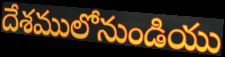
దేశములోనుండియు